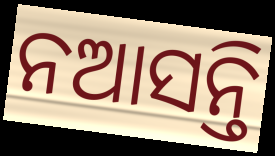
ନଆସନ୍ତି